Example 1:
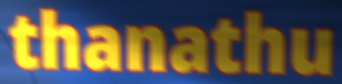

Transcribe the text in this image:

thanathu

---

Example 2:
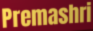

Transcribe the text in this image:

Premashri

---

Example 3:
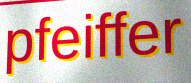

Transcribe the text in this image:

pfeiffer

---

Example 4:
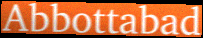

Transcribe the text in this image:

Abbottabad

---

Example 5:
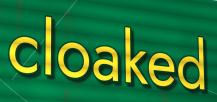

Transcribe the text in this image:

cloaked